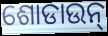
ଶୋଡାଉନ୍